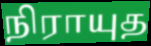
நிராயுத